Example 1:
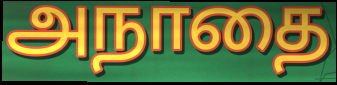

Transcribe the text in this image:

அநாதை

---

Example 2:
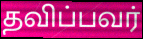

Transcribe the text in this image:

தவிப்பவர்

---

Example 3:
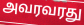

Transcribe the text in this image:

அவரவரது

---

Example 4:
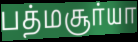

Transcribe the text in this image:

பத்மசூர்யா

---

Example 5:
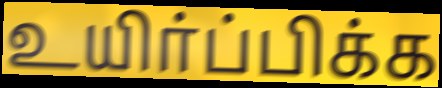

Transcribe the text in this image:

உயிர்ப்பிக்க